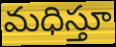
మధిస్తూ